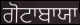
ਗੋਟਾਬਾਯਾ